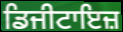
ਡਿਜੀਟਾਇਜ਼